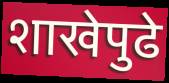
शाखेपुढे